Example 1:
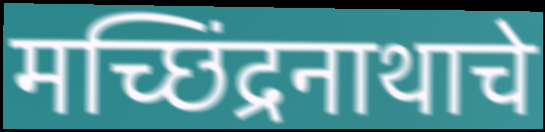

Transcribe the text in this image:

मच्छिंद्रनाथाचे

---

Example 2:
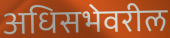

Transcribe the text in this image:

अधिसभेवरील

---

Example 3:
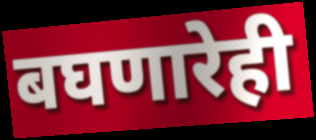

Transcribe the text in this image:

बघणारेही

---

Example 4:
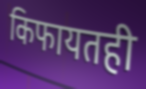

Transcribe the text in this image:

किफायतही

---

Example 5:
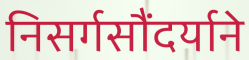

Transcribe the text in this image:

निसर्गसौंदर्याने